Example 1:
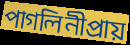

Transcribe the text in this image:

পাগলিনীপ্রায়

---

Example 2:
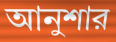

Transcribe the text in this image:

আনুশার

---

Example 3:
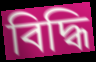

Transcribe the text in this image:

বিদ্ধি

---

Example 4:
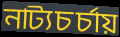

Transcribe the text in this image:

নাট্যচর্চায়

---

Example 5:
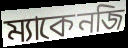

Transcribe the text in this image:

ম্যাকেনজি